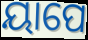
ୟାପେ